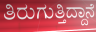
ತಿರುಗುತ್ತಿದ್ದಾನೆ